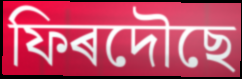
ফিৰদৌছে